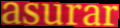
asurar